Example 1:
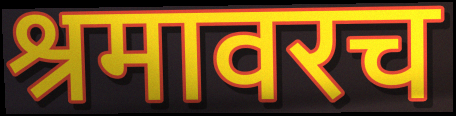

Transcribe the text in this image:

श्रमावरच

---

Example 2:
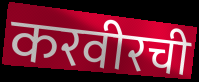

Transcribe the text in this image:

करवीरची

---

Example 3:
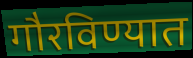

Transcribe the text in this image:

गौरविण्यात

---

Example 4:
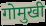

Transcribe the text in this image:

गोमुखी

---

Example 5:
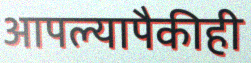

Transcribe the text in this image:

आपल्यापैकीही